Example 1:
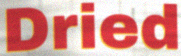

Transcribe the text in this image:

Dried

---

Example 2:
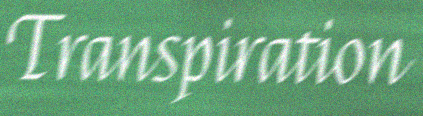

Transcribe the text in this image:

Transpiration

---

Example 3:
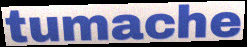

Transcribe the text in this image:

tumache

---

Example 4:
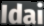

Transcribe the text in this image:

Idai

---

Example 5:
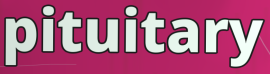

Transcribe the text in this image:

pituitary